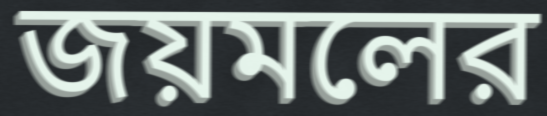
জয়মলের